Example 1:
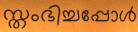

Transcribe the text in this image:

സ്തംഭിച്ചപ്പോൾ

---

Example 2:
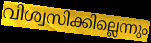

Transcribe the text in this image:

വിശ്വസിക്കില്ലെന്നും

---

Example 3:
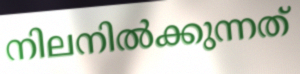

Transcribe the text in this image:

നിലനിൽക്കുന്നത്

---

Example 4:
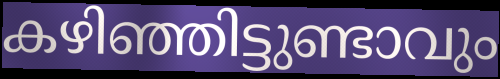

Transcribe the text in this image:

കഴിഞ്ഞിട്ടുണ്ടാവും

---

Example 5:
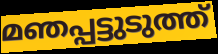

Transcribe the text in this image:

മഞപ്പട്ടുടുത്ത്